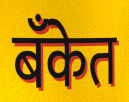
बँकेत